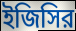
ইজিসির